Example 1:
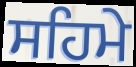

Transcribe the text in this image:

ਸਹਿਮੇ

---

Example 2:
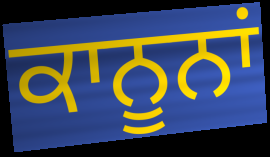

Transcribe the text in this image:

ਕਾਨੂਨਾਂ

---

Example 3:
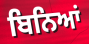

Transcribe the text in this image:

ਬਿਨਿਆਂ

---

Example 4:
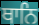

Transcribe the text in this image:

ਥਾਨਿ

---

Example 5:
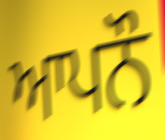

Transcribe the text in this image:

ਆਪਨੌ